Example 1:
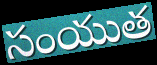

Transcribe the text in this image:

సంయుత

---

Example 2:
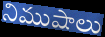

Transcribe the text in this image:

నిముషాలు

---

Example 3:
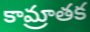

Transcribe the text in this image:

కామ్రాతక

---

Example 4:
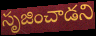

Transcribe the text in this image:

సృజించాడని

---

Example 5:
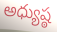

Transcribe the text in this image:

అధ్యుష్ఠ